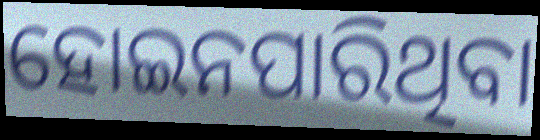
ହୋଇନପାରିଥିବା